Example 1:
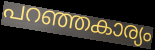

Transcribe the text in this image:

പറഞ്ഞകാര്യം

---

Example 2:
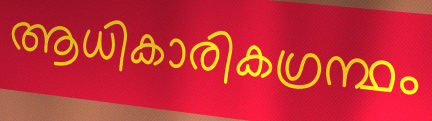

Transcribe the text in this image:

ആധികാരികഗ്രന്ഥം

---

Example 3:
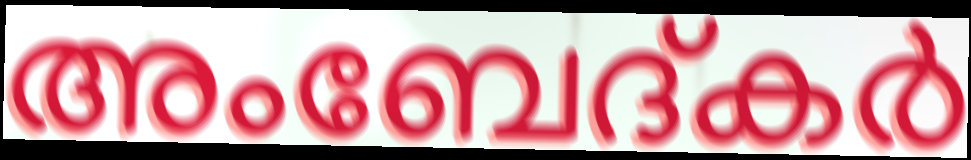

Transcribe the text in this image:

അംബേദ്കർ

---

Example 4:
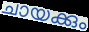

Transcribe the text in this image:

ചായക്കും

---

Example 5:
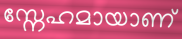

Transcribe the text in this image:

സ്നേഹമായാണ്